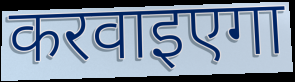
करवाइएगा